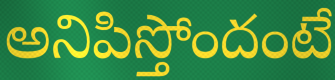
అనిపిస్తోందంటే